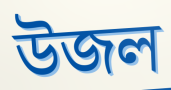
উজল